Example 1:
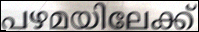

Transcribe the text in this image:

പഴമയിലേക്ക്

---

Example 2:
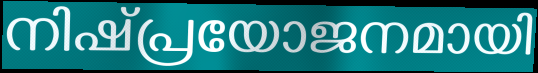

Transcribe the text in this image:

നിഷ്പ്രയോജനമായി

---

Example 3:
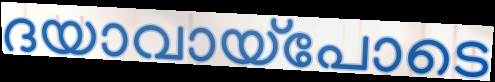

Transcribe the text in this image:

ദയാവായ്പോടെ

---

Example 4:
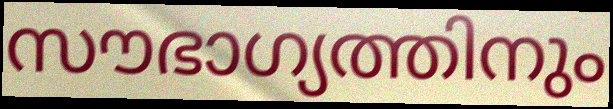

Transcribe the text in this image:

സൗഭാഗ്യത്തിനും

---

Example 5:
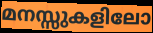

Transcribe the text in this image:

മനസ്സുകളിലോ